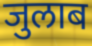
जुलाब